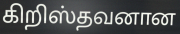
கிறிஸ்தவனான